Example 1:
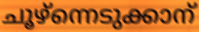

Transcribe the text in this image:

ചൂഴ്ന്നെടുക്കാന്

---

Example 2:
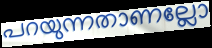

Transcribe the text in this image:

പറയുന്നതാണല്ലോ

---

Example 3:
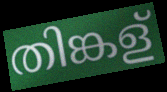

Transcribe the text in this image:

തിങ്കള്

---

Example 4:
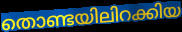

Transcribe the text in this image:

തൊണ്ടയിലിറക്കിയ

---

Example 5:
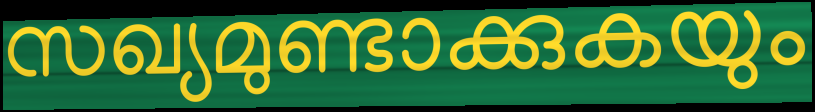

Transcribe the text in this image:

സഖ്യമുണ്ടാക്കുകയും